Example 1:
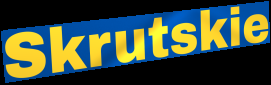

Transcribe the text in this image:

Skrutskie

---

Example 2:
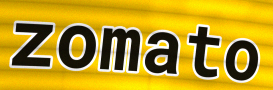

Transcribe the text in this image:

zomato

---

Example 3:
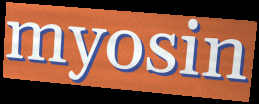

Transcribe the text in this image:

myosin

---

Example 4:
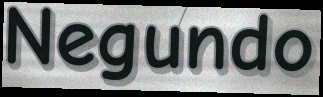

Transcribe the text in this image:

Negundo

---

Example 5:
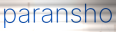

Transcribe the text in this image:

paransho